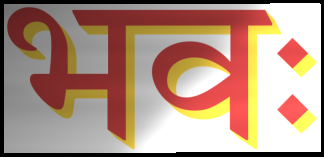
भवः